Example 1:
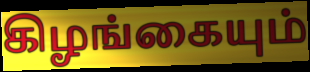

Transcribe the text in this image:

கிழங்கையும்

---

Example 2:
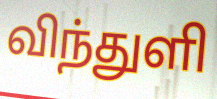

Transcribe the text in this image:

விந்துளி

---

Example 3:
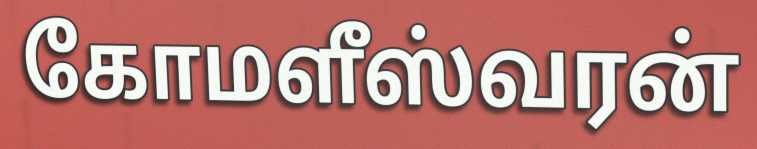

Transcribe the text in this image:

கோமளீஸ்வரன்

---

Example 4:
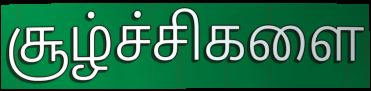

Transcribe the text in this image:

சூழ்ச்சிகளை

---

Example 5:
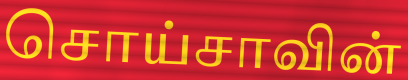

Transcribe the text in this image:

சொய்சாவின்